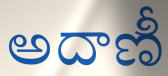
అదాణీ